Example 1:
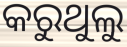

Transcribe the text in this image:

କରୁଥୁଲୁ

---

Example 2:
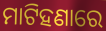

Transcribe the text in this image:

ମାଟିହଣାରେ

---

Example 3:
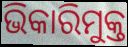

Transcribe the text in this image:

ଭିକାରିମୁକ୍ତ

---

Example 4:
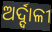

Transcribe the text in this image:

ଅର୍ଦ୍ଦାଳୀ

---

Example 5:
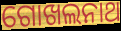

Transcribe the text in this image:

ଗୋଖଲନାଥ